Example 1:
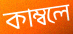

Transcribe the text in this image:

কাম্বলে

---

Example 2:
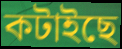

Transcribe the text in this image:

কটাইছে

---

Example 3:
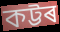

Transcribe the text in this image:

কট্টৰ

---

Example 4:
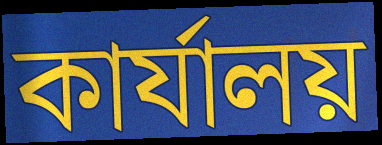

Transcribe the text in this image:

কাৰ্যালয়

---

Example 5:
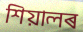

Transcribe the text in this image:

শিয়ালৰ